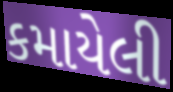
કમાયેલી